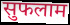
सुफलाम